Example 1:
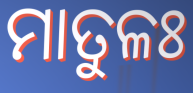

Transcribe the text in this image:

ମାତୁଳଃ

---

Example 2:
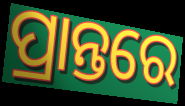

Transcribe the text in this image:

ପ୍ରାନ୍ତରେ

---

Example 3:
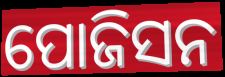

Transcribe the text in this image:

ପୋଜିସନ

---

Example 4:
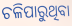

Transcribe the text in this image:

ଚଳିପାରୁଥିବା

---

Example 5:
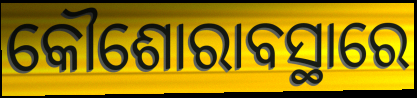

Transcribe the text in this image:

କୌଶୋରାବସ୍ଥାରେ